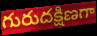
గురుదక్షిణగా